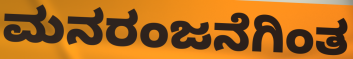
ಮನರಂಜನೆಗಿಂತ